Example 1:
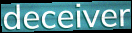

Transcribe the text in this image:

deceiver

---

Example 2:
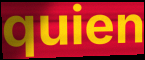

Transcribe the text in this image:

quien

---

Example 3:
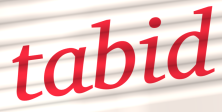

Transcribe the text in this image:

tabid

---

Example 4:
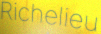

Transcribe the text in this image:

Richelieu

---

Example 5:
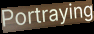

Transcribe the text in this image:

Portraying